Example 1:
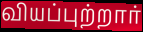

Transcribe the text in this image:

வியப்புற்றார்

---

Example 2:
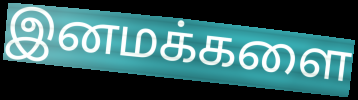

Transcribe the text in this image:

இனமக்களை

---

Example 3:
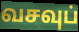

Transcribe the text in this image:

வசவுப்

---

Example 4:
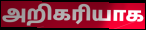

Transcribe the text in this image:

அறிகரியாக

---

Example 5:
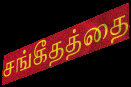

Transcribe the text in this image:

சங்கீதத்தை